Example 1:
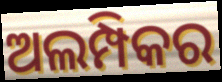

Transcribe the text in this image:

ଅଲମ୍ପିକର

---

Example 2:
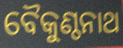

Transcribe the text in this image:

ବୈକୁଣ୍ଠନାଥ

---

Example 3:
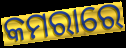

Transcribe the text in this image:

କମରାରେ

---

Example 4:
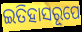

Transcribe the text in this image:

ଇତିହାସରୂପେ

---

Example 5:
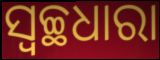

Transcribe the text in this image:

ସ୍ୱଚ୍ଛଧାରା